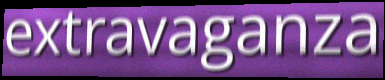
extravaganza